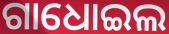
ଗାଧୋଇଲ